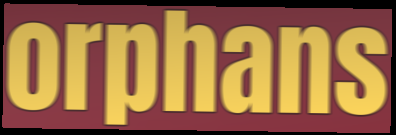
orphans